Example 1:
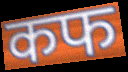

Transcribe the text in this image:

कफ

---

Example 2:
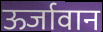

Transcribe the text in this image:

ऊर्जावान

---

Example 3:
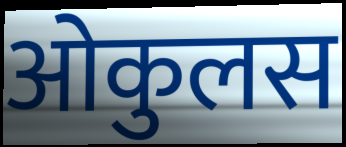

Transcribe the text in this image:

ओकुलस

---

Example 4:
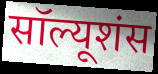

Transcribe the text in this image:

सॉल्यूशंस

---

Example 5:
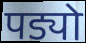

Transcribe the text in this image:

पड्यो